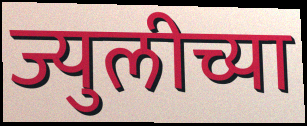
ज्युलीच्या